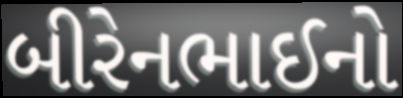
બીરેનભાઈનો